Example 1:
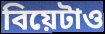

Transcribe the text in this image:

বিয়েটাও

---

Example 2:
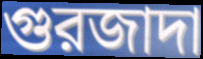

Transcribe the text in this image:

গুরজাদা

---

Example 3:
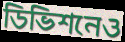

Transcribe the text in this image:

ডিভিশনেও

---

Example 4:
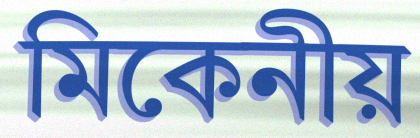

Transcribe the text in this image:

মিকেনীয়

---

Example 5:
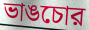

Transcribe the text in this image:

ভাঙচোর